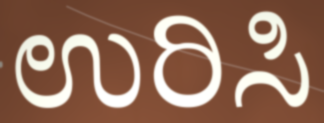
ಉರಿಸಿ